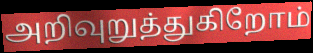
அறிவுறுத்துகிறோம்